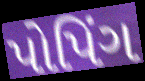
પોપિંગ